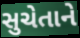
સુચેતાને